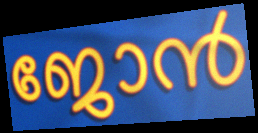
ജോൻ